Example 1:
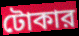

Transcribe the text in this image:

টোকার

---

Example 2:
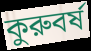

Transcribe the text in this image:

কুরুবর্ষ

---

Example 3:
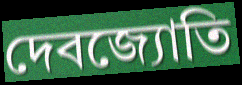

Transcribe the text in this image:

দেবজ্যোতি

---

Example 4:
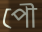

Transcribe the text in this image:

পৌ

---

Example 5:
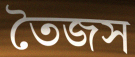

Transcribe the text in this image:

তৈজস